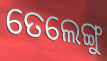
ତେଲେଙ୍ଗୁ